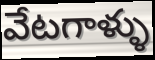
వేటగాళ్ళు